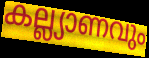
കല്ല്യാണവും